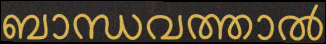
ബാന്ധവത്താൽ